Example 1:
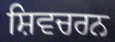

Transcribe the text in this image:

ਸ਼ਿਵਚਰਨ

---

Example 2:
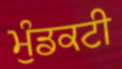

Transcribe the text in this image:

ਮੁੰਡਕਟੀ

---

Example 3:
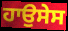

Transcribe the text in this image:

ਹਾਉਸੇਸ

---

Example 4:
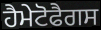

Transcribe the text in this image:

ਹੈਮੇਟੋਫੈਗਸ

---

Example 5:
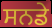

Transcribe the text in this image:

ਸਨਡੇ